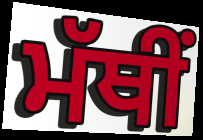
ਮੱਥੀਂ